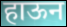
हाऊन